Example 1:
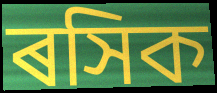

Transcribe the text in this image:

ৰসিক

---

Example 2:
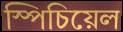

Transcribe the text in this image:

স্পিচিয়েল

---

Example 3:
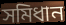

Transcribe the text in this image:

সমিধান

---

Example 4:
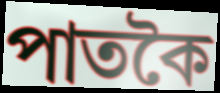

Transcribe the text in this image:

পাতকৈ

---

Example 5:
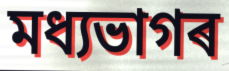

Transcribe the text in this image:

মধ্যভাগৰ